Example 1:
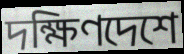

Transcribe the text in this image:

দক্ষিণদেশে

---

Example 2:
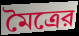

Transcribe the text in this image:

মৈত্রের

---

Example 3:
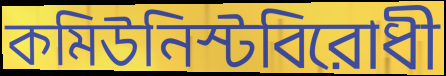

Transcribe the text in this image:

কমিউনিস্টবিরোধী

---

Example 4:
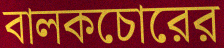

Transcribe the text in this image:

বালকচোরের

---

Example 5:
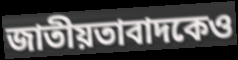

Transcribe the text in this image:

জাতীয়তাবাদকেও